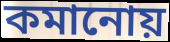
কমানোয়